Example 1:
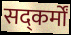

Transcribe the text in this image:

सद्कर्मों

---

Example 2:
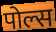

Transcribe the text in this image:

पोल्‍स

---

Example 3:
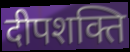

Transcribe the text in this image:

दीपशक्ति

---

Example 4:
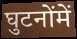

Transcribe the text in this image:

घुटनोंमें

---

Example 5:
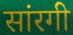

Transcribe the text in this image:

सांरगी